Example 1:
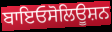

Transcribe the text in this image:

ਬਾਇਓਸੋਲਿਊਸ਼ਨ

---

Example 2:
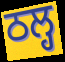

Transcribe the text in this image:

ਠਲ੍ਹ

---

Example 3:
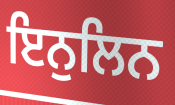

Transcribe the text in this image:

ਇਨੁਲਿਨ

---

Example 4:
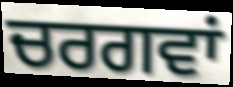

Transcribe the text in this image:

ਚਰਗਵਾਂ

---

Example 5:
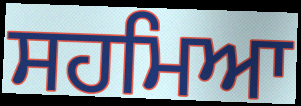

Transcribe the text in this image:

ਸਹਮਿਆ